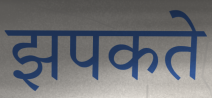
झपकते